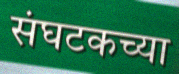
संघटकच्या